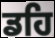
ਡਹਿ